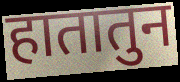
हातातुन